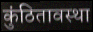
कुंठितावस्था